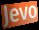
Jevo